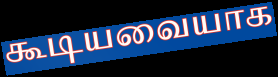
கூடியவையாக